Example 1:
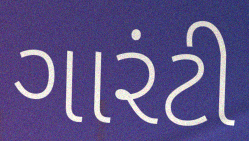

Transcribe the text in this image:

ગારંટી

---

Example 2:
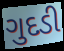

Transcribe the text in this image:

ગુદડી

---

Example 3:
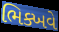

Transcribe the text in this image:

ભિક્ખવે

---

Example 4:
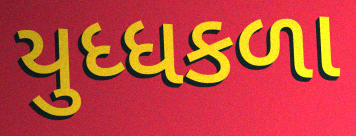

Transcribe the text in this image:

યુધ્ધકળા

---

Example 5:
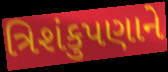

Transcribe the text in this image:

ત્રિશંકુપણાને